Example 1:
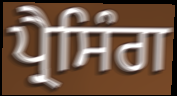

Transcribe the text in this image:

ਪ੍ਰੈਸਿੰਗ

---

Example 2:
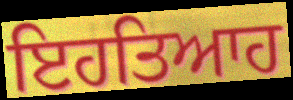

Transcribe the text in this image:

ਇਹਤਿਆਹ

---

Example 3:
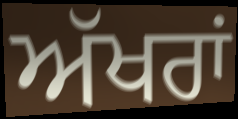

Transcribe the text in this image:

ਅੱਖਰਾਂ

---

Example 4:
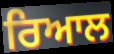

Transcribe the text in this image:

ਰਿਆਲ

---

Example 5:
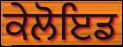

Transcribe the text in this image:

ਕੇਲੋਇਡ